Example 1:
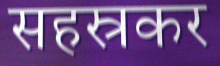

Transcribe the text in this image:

सहस्रकर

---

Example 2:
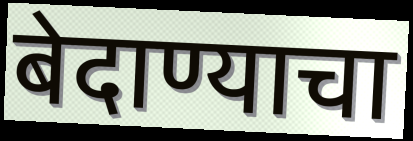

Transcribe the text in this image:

बेदाण्याचा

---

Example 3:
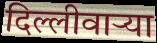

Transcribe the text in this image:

दिल्लीवाऱ्या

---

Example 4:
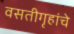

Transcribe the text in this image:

वसतीगृहांचे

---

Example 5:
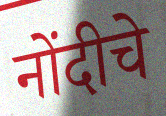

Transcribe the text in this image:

नोंदीचे